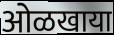
ओळखाया